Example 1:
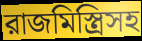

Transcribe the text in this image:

রাজমিস্ত্রিসহ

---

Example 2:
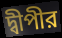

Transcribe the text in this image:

দ্বীপীর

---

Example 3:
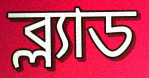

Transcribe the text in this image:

ব্ল্যাড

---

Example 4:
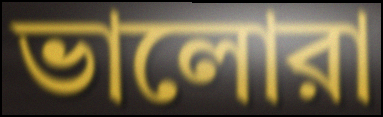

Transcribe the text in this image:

ভালোরা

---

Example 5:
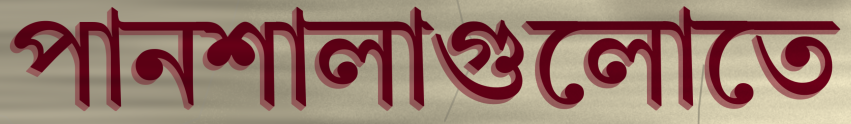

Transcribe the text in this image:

পানশালাগুলোতে